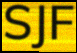
SJF